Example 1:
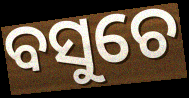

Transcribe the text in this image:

ବସୁଚେ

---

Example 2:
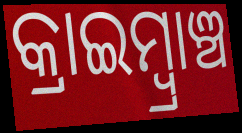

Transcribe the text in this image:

କ୍ରାଇମ୍ବ୍ରାଞ୍ଚ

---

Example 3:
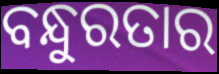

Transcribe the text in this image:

ବନ୍ଧୁରତାର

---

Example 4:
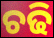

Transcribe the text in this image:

ଚଢି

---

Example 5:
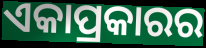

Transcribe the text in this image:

ଏକାପ୍ରକାରର